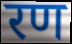
रण